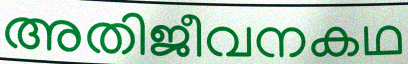
അതിജീവനകഥ